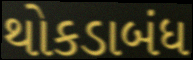
થોકડાબંધ